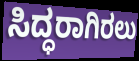
ಸಿದ್ಧರಾಗಿರಲು